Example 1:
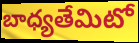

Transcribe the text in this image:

బాధ్యతేమిటో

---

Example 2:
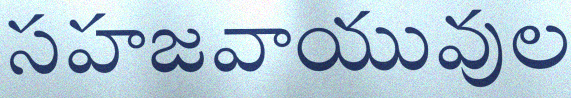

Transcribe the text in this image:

సహజవాయువుల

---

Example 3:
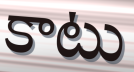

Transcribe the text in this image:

కాటు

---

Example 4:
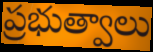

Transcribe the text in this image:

ప్రభుత్వాలు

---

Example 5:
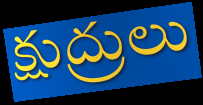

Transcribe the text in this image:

క్షుద్రులు